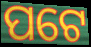
ପଟେ